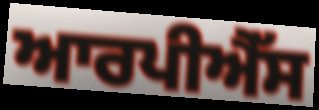
ਆਰਪੀਐੱਸ